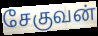
சேகுவன்